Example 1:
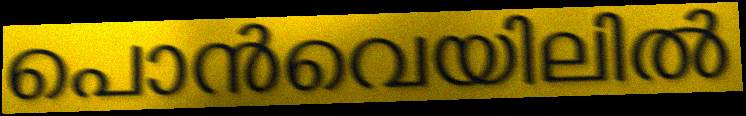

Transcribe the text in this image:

പൊൻവെയിലിൽ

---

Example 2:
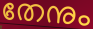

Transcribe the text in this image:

തേനും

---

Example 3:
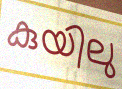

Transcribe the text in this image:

കുയിലു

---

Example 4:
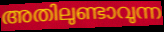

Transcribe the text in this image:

അതിലുണ്ടാവുന്ന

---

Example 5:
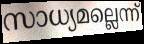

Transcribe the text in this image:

സാധ്യമല്ലെന്ന്